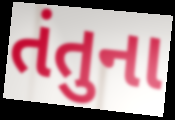
તંતુના